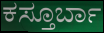
ಕಸ್ತೂರ್ಬಾ